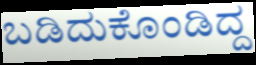
ಬಡಿದುಕೊಂಡಿದ್ದ